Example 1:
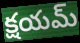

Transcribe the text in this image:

క్షయమ్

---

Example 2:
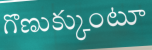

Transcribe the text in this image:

గొణుక్కుంటూ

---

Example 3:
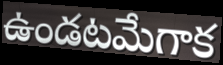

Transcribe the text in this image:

ఉండటమేగాక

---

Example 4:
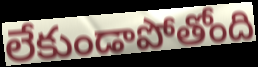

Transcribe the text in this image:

లేకుండాపోతోంది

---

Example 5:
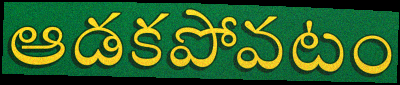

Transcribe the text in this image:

ఆడకపోవటం